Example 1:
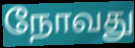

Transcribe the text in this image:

நோவது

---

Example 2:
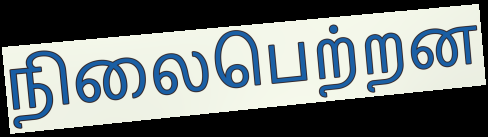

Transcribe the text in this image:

நிலைபெற்றன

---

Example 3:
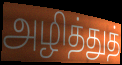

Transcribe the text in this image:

அழித்துத்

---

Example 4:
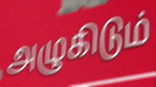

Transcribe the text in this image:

அழுகிடும்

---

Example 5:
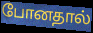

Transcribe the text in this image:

போனதால்